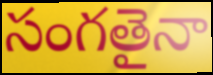
సంగతైనా